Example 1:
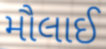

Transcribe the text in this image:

મૌલાઈ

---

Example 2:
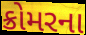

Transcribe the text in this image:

ક્રોમરના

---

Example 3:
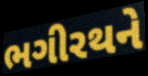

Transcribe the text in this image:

ભગીરથને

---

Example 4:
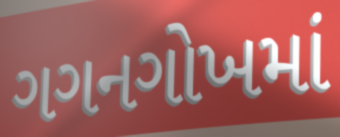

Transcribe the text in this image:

ગગનગોખમાં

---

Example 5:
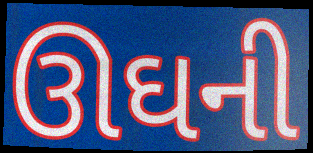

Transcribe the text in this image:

ઊઘની